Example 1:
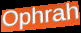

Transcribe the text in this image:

Ophrah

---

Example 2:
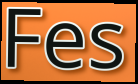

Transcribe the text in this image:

Fes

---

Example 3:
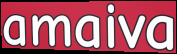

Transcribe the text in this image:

amaiva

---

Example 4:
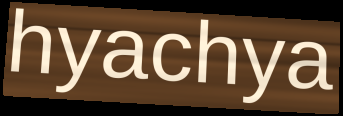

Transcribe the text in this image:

hyachya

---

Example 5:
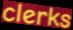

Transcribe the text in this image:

clerks